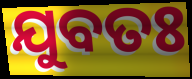
ଯୁବତଃ